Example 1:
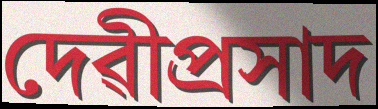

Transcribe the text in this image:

দেৱীপ্ৰসাদ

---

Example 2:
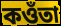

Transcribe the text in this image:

কওঁতা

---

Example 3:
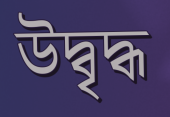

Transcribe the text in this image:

উদ্বৃদ্ধ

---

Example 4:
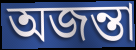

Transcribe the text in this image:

অজন্তা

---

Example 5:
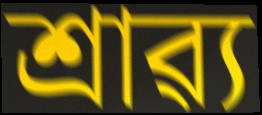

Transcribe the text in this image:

শ্ৰাৱ্য